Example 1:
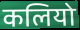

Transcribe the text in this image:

कलियो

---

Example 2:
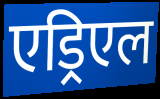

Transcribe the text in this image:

एड्रिएल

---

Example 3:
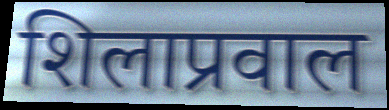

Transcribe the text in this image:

शिलाप्रवाल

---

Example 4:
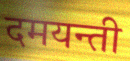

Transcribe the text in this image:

दमयन्ती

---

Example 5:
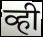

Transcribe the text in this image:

व्‍ही